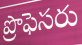
ప్రొఫెసరు